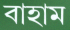
বাহাম